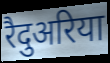
रैदुअरिया